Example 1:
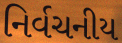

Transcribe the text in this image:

નિર્વચનીય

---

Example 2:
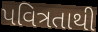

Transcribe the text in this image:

પવિત્રતાથી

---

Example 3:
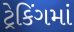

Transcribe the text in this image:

ટ્રેકિંગમાં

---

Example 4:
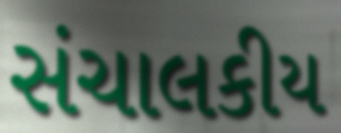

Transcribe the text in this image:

સંચાલકીય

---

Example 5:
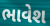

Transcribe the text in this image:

ભાવેશ